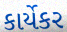
કાર્યેકર